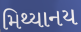
મિથ્યાનય